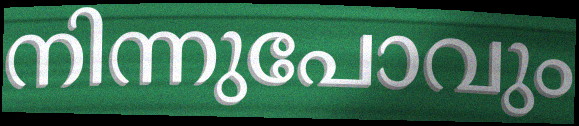
നിന്നുപോവും